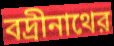
বদ্রীনাথের